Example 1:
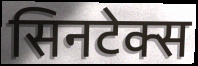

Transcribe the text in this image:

सिनटेक्स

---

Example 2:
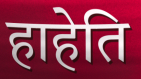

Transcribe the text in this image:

हाहेति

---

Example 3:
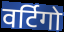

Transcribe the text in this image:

वर्टिगो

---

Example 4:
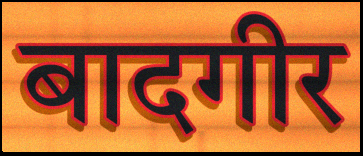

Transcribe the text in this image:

बादगीर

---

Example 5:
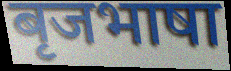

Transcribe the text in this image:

बृजभाषा